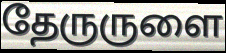
தேருருளை